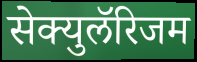
सेक्युलॅरिजम